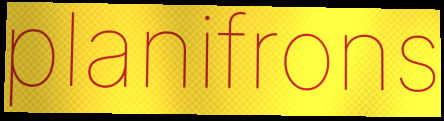
planifrons